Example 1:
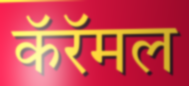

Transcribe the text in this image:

कॅरॅमल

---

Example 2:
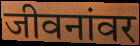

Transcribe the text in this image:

जीवनांवर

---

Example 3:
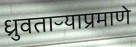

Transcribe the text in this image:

ध्रुवताऱ्याप्रमाणे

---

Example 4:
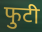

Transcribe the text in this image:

फुटी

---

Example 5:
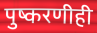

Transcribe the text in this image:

पुष्करणीही